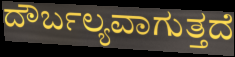
ದೌರ್ಬಲ್ಯವಾಗುತ್ತದೆ